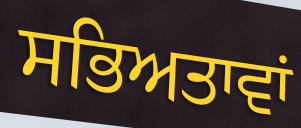
ਸਭਿਅਤਾਵਾਂ